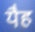
यैह